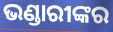
ଭଣ୍ଡାରୀଙ୍କର